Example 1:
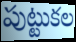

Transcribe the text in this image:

పుట్టుకల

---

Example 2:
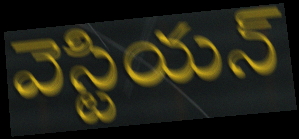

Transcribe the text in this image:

వెస్టియన్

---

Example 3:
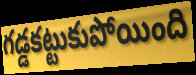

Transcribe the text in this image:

గడ్డకట్టుకుపోయింది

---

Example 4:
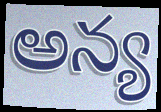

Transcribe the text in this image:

అన్య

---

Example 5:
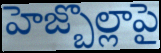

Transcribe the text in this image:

హెజ్బొల్లాపై